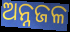
ଅନ୍ନଜଳ